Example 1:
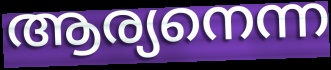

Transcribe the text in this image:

ആര്യനെന്ന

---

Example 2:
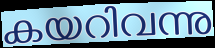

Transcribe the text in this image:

കയറിവന്നു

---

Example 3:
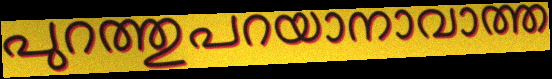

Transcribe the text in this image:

പുറത്തുപറയാനാവാത്ത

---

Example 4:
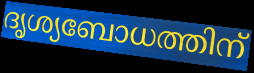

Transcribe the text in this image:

ദൃശ്യബോധത്തിന്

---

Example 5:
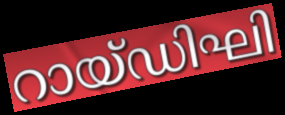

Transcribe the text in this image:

റായ്ഡിഘി